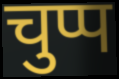
चुप्प